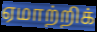
ஏமாற்றிக்